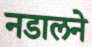
नडालने